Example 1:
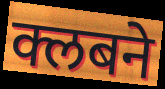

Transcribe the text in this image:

क्‍लबने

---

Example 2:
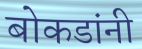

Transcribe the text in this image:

बोकडांनी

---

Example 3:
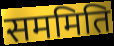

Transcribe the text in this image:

सममिति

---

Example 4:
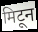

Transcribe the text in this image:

मिटून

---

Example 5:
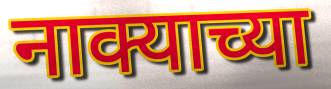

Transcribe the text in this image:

नाक्याच्या